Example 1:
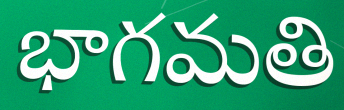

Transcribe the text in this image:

భాగమతి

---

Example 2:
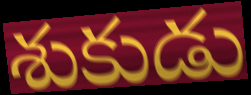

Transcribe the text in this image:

శుకుడు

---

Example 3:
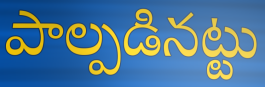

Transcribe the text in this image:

పాల్పడినట్టు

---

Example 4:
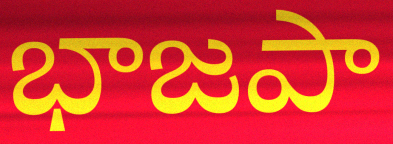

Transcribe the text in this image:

భాజపా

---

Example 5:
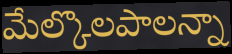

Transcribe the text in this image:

మేల్కొలపాలన్నా